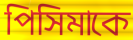
পিসিমাকে